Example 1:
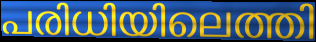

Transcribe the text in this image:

പരിധിയിലെത്തി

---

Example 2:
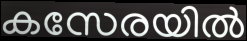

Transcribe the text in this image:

കസേരയിൽ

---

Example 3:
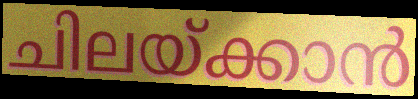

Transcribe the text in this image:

ചിലയ്ക്കാൻ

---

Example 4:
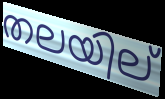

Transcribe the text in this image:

തലയില്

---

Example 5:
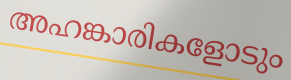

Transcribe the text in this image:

അഹങ്കാരികളോടും